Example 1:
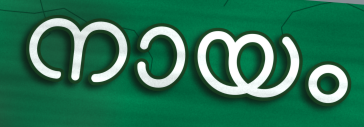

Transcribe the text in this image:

നായം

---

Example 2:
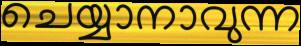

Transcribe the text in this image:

ചെയ്യാനാവുന്ന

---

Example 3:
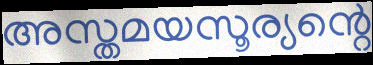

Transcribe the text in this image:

അസ്തമയസൂര്യന്റെ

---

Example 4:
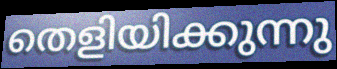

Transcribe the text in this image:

തെളിയിക്കുന്നു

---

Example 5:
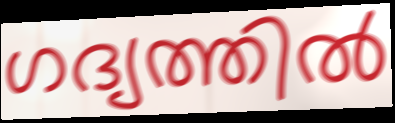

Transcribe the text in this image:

ഗദ്യത്തിൽ